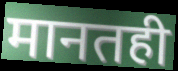
मानतही